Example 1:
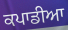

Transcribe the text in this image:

ਕਪਾਡੀਆ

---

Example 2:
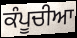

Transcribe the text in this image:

ਕੰਪੂਚੀਆ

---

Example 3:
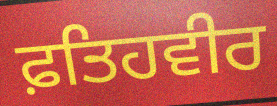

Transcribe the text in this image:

ਫ਼ਤਿਹਵੀਰ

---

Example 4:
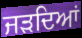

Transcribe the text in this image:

ਜੜਦਿਆਂ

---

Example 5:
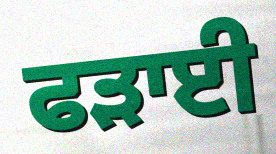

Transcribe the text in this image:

ਫੜਾਈ